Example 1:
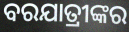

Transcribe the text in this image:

ବରଯାତ୍ରୀଙ୍କର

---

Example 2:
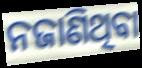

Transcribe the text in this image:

ନଜାଣିଥିବା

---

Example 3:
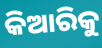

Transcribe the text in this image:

କିଆରିକୁ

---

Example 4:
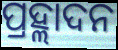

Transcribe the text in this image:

ପ୍ରହ୍ଲାଦନ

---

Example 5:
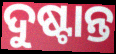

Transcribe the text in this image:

ଦୁଷ୍ଟାନ୍ତ